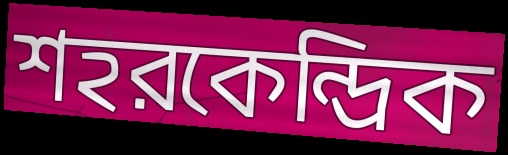
শহরকেন্দ্রিক